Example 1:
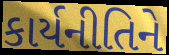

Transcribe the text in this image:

કાર્યનીતિને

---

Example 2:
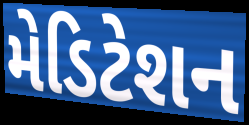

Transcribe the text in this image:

મેડિટેશન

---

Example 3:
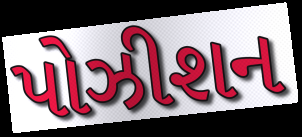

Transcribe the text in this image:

પોઝીશન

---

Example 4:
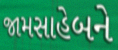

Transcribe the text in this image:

જામસાહેબને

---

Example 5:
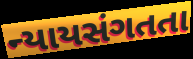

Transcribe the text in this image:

ન્યાયસંગતતા